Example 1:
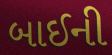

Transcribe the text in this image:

બાઈની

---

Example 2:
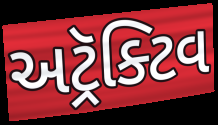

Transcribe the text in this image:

અટ્રૅક્ટિવ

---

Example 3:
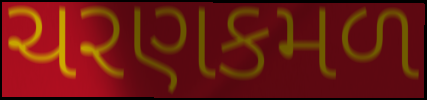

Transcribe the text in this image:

ચરણકમળ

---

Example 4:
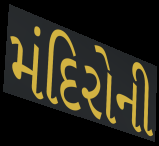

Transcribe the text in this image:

મંદિરોની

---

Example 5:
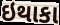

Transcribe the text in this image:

ઇથાકા